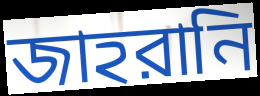
জাহরানি